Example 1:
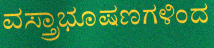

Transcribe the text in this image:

ವಸ್ತ್ರಾಭೂಷಣಗಳಿಂದ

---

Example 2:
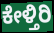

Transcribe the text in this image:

ಕೇಳ್ತಿರಿ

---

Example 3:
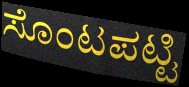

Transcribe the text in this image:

ಸೊಂಟಪಟ್ಟಿ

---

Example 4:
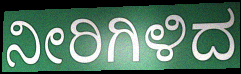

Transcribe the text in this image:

ನೀರಿಗಿಳಿದ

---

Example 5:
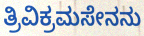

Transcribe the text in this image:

ತ್ರಿವಿಕ್ರಮಸೇನನು